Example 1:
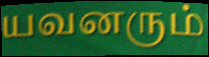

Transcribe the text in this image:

யவனரும்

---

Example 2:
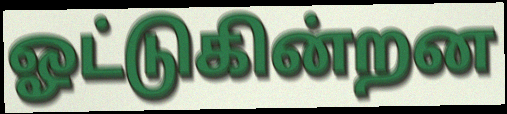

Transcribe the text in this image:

ஓட்டுகின்றன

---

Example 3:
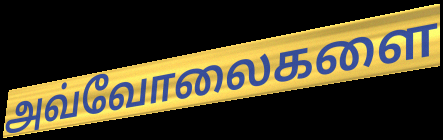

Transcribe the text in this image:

அவ்வோலைகளை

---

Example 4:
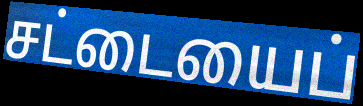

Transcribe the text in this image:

சட்டையைப்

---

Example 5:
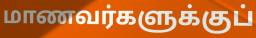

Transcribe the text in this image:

மாணவர்களுக்குப்